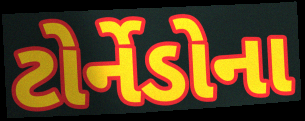
ટોર્નેડોના